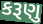
કરૂણુ